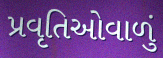
પ્રવૃતિઓવાળું